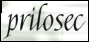
prilosec